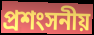
প্রশংসনীয়